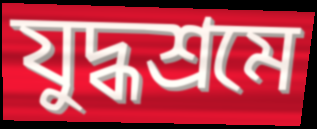
যুদ্ধশ্রমে